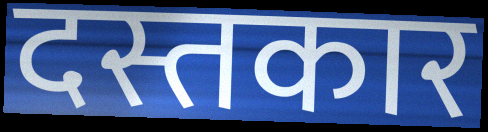
दस्‍तकार